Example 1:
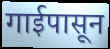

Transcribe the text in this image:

गाईपासून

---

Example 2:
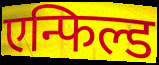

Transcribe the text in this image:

एन्फिल्ड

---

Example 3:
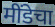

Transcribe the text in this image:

मींडेचा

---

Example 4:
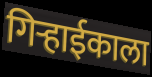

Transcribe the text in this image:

गिर्‍हाईकाला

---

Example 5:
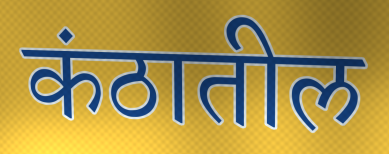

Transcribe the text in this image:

कंठातील